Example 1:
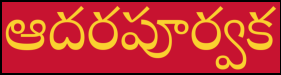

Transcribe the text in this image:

ఆదరపూర్వక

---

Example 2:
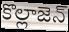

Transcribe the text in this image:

కొల్లాజెన్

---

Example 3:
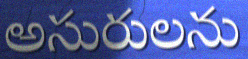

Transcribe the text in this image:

అసురులను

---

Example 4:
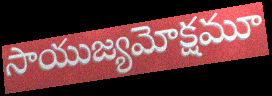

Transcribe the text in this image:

సాయుజ్యమోక్షమూ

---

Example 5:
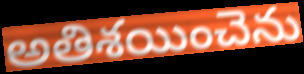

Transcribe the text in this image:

అతిశయించెను